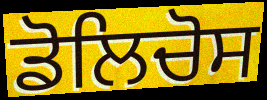
ਡੋਲਿਚੋਸ